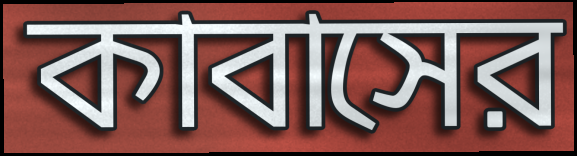
কাবাসের